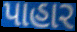
પાહાર